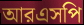
আরএসপি